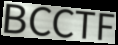
BCCTF